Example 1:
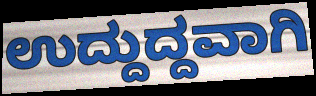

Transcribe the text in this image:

ಉದ್ದುದ್ದವಾಗಿ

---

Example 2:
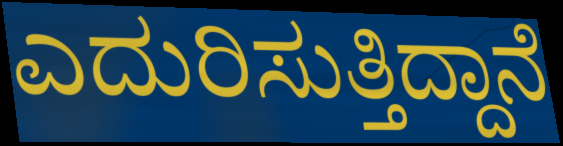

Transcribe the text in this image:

ಎದುರಿಸುತ್ತಿದ್ದಾನೆ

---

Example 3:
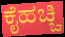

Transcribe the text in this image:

ಕೈಹಚ್ಚಿ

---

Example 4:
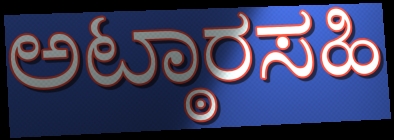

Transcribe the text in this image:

ಅಟ್ಠಾರಸಹಿ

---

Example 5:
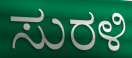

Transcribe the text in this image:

ಸುರಳಿ